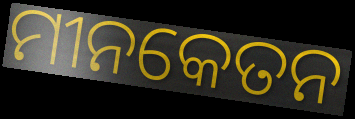
ମୀନକେତନ